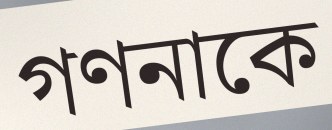
গণনাকে